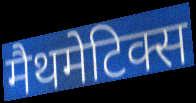
मैथमेटिक्स